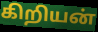
கிறியன்